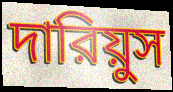
দারিয়ুস